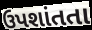
ઉપશાંતતા